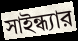
সাইন্ধ্যার